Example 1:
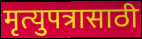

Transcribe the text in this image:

मृत्युपत्रासाठी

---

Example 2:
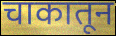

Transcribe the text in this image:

चाकातून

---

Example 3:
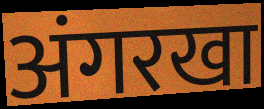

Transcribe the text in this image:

अंगरखा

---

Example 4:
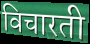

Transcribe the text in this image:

विचारती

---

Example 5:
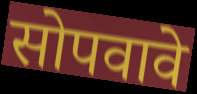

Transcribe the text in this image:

सोपवावे